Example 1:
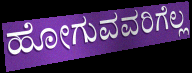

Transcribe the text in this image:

ಹೋಗುವವರಿಗೆಲ್ಲ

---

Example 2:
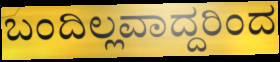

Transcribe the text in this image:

ಬಂದಿಲ್ಲವಾದ್ದರಿಂದ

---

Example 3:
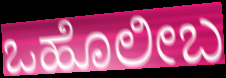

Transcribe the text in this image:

ಒಹೊಲೀಬ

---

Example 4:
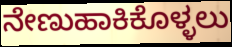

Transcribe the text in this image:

ನೇಣುಹಾಕಿಕೊಳ್ಳಲು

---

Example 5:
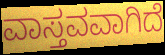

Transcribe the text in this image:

ವಾಸ್ತವವಾಗಿದೆ